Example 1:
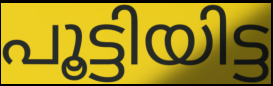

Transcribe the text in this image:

പൂട്ടിയിട്ട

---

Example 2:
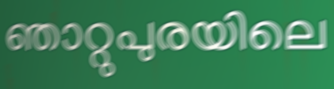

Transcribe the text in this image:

ഞാറ്റുപുരയിലെ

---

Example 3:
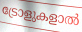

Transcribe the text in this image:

ട്രോളുകളാൽ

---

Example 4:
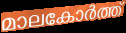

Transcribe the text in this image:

മാലകോർത്ത്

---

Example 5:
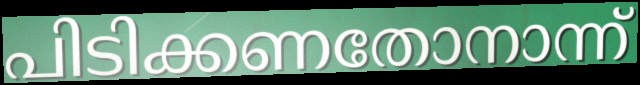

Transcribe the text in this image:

പിടിക്കണതോനാന്ന്